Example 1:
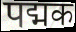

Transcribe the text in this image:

पद्मक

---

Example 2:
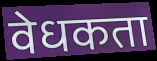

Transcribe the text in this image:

वेधकता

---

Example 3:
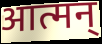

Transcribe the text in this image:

आत्मन्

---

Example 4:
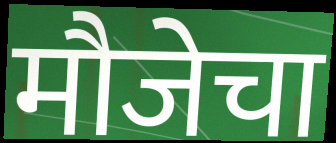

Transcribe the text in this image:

मौजेचा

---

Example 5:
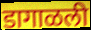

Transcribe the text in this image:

डागाळली